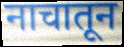
नाचातून